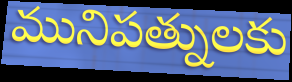
మునిపత్నులకు